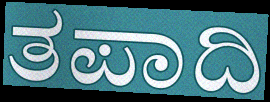
ತಪಾದಿ